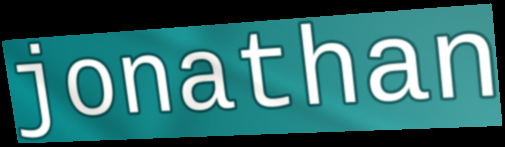
jonathan